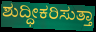
ಶುದ್ಧೀಕರಿಸುತ್ತಾ